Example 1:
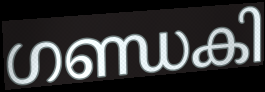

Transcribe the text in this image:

ഗണ്ഡകി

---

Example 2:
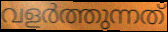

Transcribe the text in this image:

വളർത്തുന്നത്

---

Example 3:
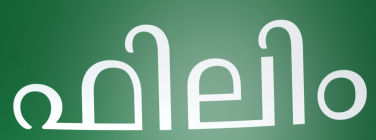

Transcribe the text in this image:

ഫിലിം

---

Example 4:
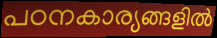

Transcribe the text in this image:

പഠനകാര്യങ്ങളിൽ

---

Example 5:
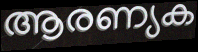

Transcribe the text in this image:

ആരണ്യക